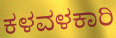
ಕಳವಳಕಾರಿ